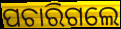
ପଚାରିଗଲେ